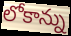
లోకాన్ను